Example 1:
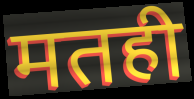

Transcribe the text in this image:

मतही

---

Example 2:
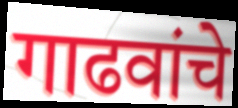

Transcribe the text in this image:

गाढवांचे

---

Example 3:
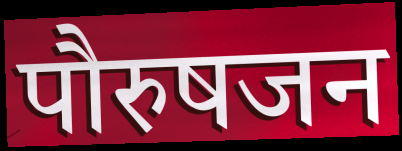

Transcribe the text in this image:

पौरुषजन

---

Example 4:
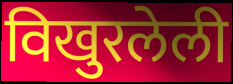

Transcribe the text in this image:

विखुरलेली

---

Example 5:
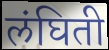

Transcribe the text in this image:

लंघिती